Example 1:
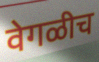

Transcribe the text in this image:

वेगळीच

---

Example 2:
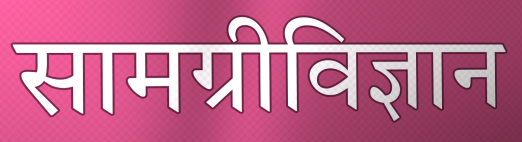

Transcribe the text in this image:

सामग्रीविज्ञान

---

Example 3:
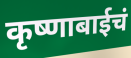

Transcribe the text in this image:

कृष्णाबाईचं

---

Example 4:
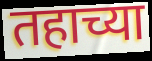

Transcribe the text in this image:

तहाच्या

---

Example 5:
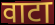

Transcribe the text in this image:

वाटा